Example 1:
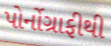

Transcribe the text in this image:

પોર્નોગ્રાફીથી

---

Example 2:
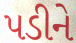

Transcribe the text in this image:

પડીને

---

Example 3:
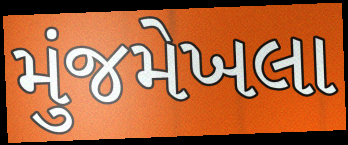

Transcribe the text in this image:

મુંજમેખલા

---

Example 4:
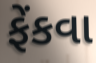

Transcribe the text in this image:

ફેંકવા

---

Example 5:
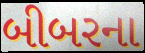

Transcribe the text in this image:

બીબરના